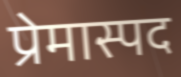
प्रेमास्पद